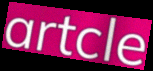
artcle